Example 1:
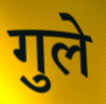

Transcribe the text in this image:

गुले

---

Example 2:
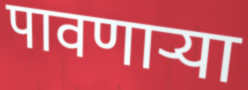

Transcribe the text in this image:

पावणाऱ्या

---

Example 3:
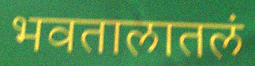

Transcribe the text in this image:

भवतालातलं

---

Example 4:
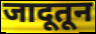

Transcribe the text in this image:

जादूतून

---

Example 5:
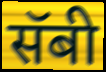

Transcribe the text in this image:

सॅबी